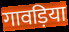
गावड़िया